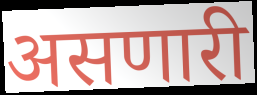
असणारी